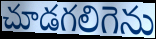
చూడగలిగెను